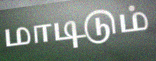
மாடிடும்